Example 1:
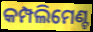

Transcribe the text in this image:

କମ୍ପଲିମେଣ୍ଟ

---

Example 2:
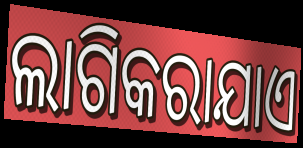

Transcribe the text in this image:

ଲାଗିକରାଯାଏ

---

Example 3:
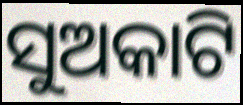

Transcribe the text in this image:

ସୁଅକାଟି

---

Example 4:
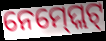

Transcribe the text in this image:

ନେମ୍‍ପ୍ଲେଟ୍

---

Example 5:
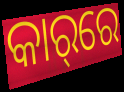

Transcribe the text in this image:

କାର୍‌ରେ